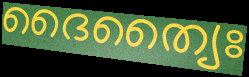
ദൈത്യൈഃ